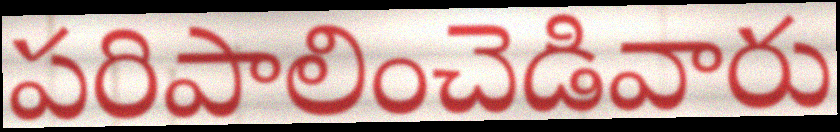
పరిపాలించెడివారు